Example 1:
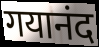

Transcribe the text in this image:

गयानंद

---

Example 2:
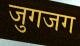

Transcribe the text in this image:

जुगजग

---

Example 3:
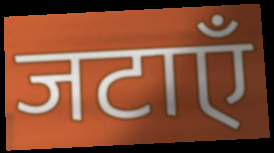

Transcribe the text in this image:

जटाएँ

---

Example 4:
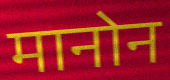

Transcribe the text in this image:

मानोन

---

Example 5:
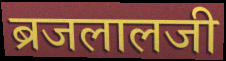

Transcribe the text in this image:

ब्रजलालजी